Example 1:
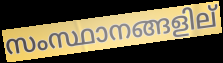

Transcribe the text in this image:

സംസ്ഥാനങ്ങളില്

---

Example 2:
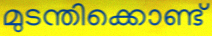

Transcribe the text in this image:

മുടന്തിക്കൊണ്ട്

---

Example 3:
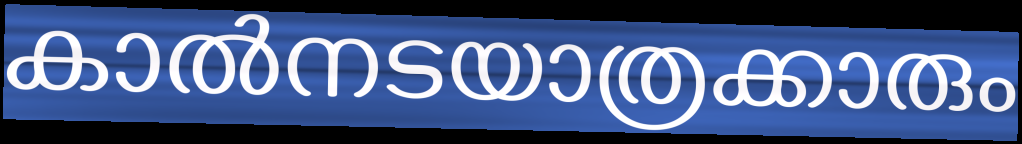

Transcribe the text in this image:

കാൽനടയാത്രക്കാരും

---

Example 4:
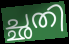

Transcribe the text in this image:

ച്ഛതി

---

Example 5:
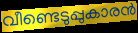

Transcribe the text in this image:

വീണ്ടെടുപ്പുകാരൻ